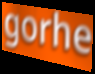
gorhe